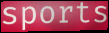
sports